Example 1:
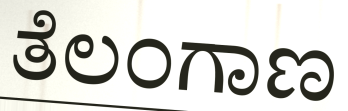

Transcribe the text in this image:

ತೆಲಂಗಾಣ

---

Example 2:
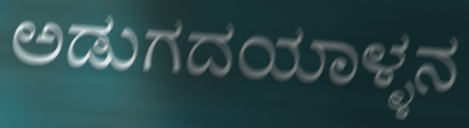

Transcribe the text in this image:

ಅಡುಗದಯಾಳ್ಳನ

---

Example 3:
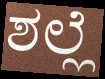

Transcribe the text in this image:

ಶಲ್ಲೆ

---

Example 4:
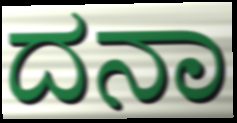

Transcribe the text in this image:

ದನಾ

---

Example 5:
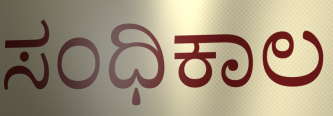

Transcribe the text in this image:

ಸಂಧಿಕಾಲ